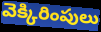
వెక్కిరింపులు